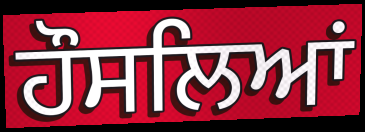
ਹੌਸਲਿਆਂ